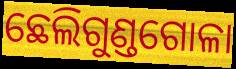
ଛେଲିଗୁଣ୍ଡଗୋଳା